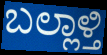
ಬಲ್ಲಾಳ್ತಿ